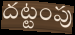
దట్టంపు